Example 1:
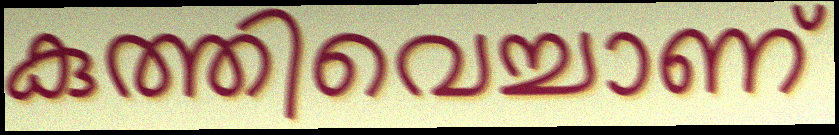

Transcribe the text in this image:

കുത്തിവെച്ചാണ്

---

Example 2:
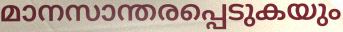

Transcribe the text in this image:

മാനസാന്തരപ്പെടുകയും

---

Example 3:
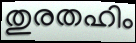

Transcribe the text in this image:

തുരതഹിം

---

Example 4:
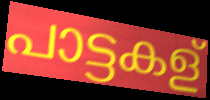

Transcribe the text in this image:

പാട്ടകള്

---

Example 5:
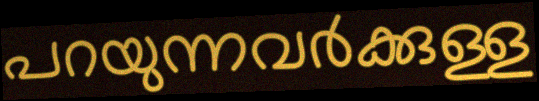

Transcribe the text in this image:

പറയുന്നവർക്കുള്ള